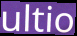
ultio